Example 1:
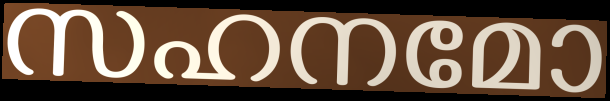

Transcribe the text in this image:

സഹനമോ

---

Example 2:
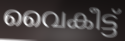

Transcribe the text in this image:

വൈകീട്ട്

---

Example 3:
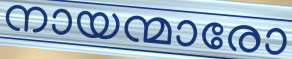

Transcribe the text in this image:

നായന്മാരോ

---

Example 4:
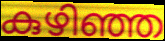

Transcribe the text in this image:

കുഴിഞ്ഞ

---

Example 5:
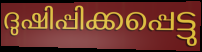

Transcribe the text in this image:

ദുഷിപ്പിക്കപ്പെട്ടു